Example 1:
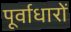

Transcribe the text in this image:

पूर्वाधारों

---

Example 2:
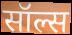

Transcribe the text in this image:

सॉल्स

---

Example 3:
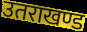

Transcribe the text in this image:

उतराखण्ड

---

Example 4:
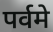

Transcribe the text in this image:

पर्वमे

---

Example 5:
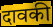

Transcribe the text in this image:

दावकी